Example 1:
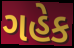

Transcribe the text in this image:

ગહેક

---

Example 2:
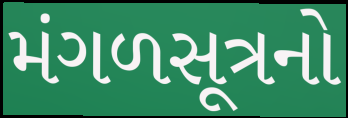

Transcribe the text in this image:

મંગળસૂત્રનો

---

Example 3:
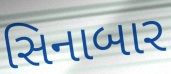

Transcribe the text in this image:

સિનાબાર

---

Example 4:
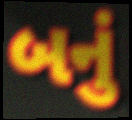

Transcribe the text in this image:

બનું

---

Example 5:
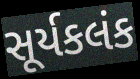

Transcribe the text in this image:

સૂર્યકલંક